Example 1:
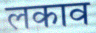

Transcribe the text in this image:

लकाव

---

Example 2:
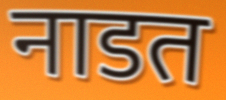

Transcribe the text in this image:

नाडत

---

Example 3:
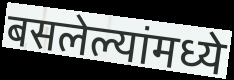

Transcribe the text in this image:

बसलेल्यांमध्ये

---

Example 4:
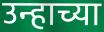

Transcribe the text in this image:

उन्हाच्या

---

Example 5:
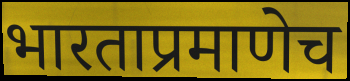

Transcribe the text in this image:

भारताप्रमाणेच